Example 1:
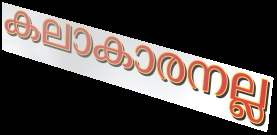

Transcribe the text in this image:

കലാകാരനല്ല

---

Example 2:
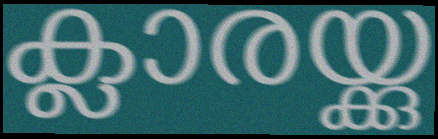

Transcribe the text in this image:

ക്ലാരയ്ക്കു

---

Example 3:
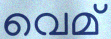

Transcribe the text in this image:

വെമ്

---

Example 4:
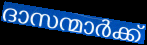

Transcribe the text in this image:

ദാസന്മാർക്ക്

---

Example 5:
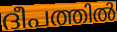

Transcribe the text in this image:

ദീപത്തിൽ